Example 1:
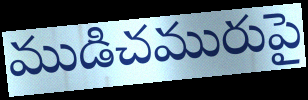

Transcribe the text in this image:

ముడిచమురుపై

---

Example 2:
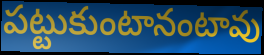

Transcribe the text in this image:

పట్టుకుంటానంటావు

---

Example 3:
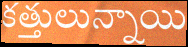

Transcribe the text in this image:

కత్తులున్నాయి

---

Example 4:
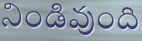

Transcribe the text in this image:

నిండివుంది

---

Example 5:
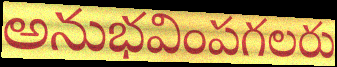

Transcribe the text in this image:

అనుభవింపగలరు